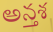
అన్తశ